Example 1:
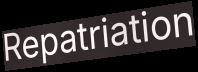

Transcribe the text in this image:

Repatriation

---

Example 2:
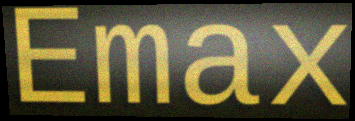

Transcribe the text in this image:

Emax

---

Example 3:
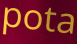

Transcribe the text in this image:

pota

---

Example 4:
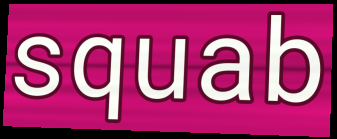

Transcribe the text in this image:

squab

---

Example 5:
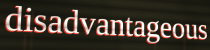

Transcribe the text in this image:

disadvantageous